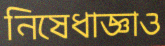
নিষেধাজ্ঞাও